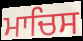
ਮਾਚਿਸ